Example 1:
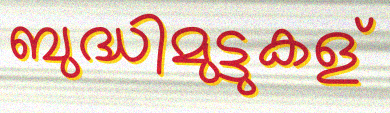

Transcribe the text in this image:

ബുദ്ധിമുട്ടുകള്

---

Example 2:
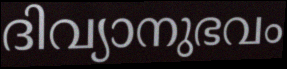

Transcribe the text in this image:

ദിവ്യാനുഭവം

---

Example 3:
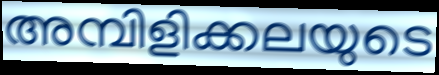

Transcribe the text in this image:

അമ്പിളിക്കലയുടെ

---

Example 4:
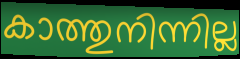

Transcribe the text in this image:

കാത്തുനിന്നില്ല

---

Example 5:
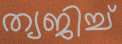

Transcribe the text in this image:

ത്യജിച്ച്